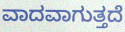
ವಾದವಾಗುತ್ತದೆ